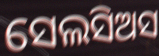
ସେଲସିଅସ